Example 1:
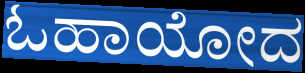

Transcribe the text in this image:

ಓಹಾಯೋದ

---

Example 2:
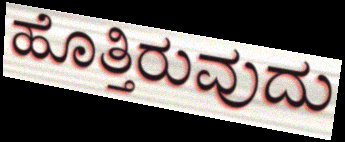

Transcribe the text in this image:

ಹೊತ್ತಿರುವುದು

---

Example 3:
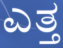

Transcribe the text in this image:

ಎತ್ತ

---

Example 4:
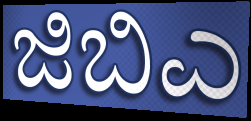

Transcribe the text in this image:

ಜಿಬಿಎ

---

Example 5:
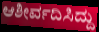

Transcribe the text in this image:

ಆಶೀರ್ವದಿಸಿದ್ದು